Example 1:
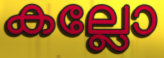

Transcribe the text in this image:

കല്ലോ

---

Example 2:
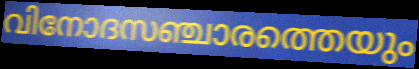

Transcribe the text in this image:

വിനോദസഞ്ചാരത്തെയും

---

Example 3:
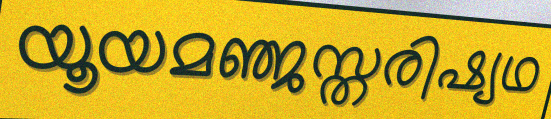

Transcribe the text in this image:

യൂയമഞ്ജസ്തരിഷ്യഥ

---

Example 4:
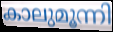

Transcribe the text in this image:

കാലുമൂന്നി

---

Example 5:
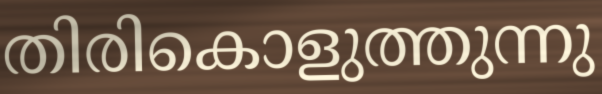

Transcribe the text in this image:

തിരികൊളുത്തുന്നു